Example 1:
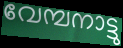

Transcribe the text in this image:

വേമ്പനാട്ടു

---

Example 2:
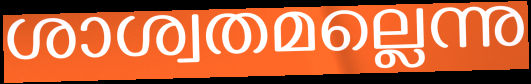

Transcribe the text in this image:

ശാശ്വതമല്ലെന്നു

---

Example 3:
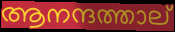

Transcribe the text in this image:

ആനന്ദത്താല്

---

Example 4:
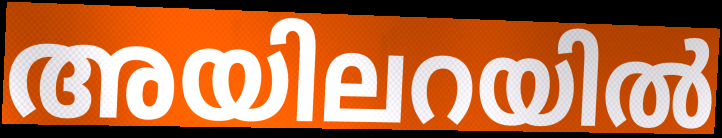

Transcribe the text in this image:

അയിലറയിൽ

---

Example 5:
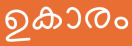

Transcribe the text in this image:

ഉകാരം